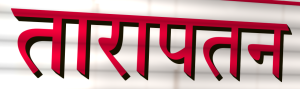
तारापतन